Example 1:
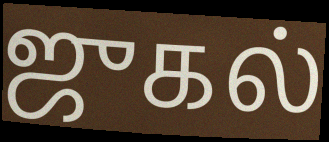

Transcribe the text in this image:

ஜுகல்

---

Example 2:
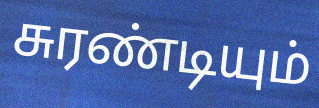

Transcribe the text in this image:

சுரண்டியும்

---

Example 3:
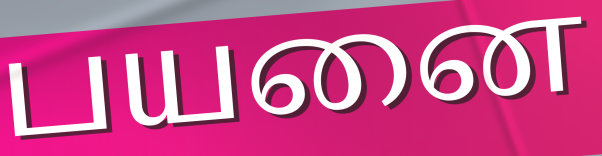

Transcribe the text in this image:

பயனை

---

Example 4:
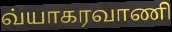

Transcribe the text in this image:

வ்யாகரவாணி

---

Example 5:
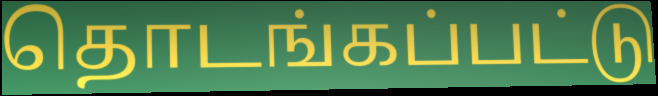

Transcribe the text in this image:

தொடங்கப்பட்டு